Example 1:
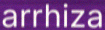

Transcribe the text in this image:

arrhiza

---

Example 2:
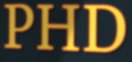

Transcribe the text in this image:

PHD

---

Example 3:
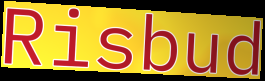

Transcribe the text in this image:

Risbud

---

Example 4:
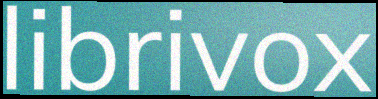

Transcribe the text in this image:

librivox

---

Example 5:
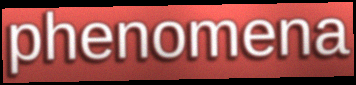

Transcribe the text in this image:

phenomena